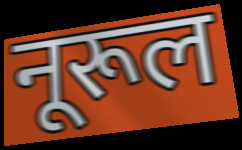
नूरूल